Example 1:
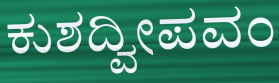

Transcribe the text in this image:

ಕುಶದ್ವೀಪವಂ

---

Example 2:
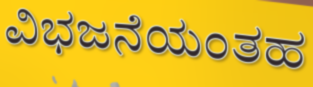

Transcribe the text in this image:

ವಿಭಜನೆಯಂತಹ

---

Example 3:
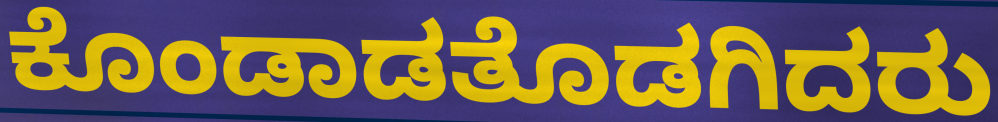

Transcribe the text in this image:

ಕೊಂಡಾಡತೊಡಗಿದರು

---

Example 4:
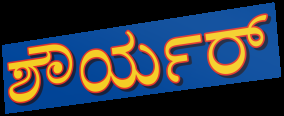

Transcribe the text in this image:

ಶೌರ್ಯರ್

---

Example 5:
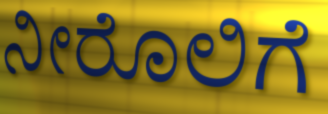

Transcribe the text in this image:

ನೀರೊಲಿಗೆ